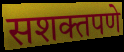
सशक्तपणे